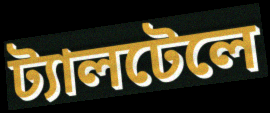
ট্যালটেলে